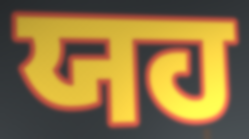
ਯਹ